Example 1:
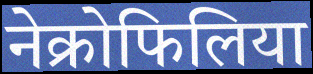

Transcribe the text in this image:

नेक्रोफिलिया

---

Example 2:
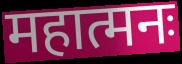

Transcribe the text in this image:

महात्मनः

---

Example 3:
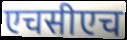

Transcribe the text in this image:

एचसीएच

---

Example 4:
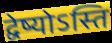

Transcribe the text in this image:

द्वेष्योऽस्ति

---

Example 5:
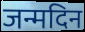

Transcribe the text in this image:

जन्‍मदिन